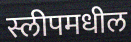
स्लीपमधील